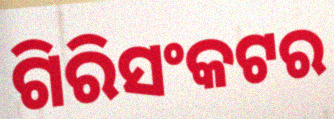
ଗିରିସଂକଟର